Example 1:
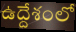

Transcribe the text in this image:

ఉద్దేశంలో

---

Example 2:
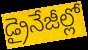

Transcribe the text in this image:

డ్రైనేజీల్లో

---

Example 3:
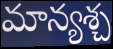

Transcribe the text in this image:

మాన్యశ్చ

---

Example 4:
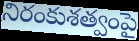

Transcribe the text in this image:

నిరంకుశత్వంపై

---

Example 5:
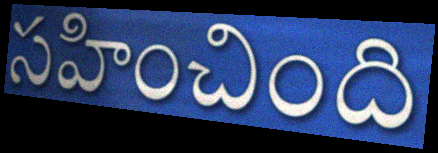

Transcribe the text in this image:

సహించింది